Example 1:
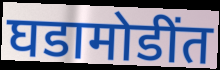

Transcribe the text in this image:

घडामोडींत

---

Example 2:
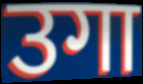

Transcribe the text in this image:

उगा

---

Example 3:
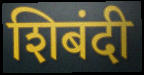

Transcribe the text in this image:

शिबंदी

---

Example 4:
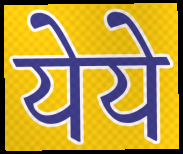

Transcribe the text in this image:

येये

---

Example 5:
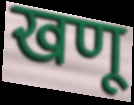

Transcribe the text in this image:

खणू